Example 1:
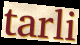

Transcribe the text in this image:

tarli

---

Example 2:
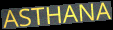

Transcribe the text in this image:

ASTHANA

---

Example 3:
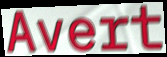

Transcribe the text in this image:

Avert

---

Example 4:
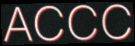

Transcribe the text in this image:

ACCC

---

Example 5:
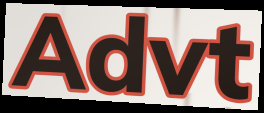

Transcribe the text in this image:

Advt